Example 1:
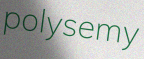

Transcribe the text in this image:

polysemy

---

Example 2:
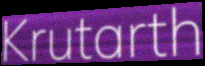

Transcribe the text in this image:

Krutarth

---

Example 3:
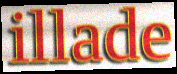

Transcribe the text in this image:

illade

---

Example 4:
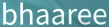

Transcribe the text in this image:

bhaaree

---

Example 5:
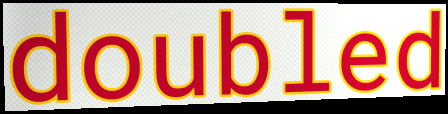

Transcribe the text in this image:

doubled